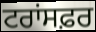
ਟਰਾਂਸਫ਼ਰ